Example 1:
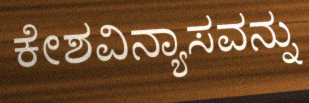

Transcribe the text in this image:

ಕೇಶವಿನ್ಯಾಸವನ್ನು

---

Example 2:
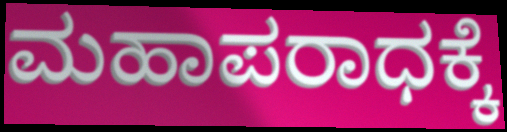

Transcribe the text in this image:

ಮಹಾಪರಾಧಕ್ಕೆ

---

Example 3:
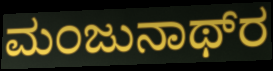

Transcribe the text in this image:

ಮಂಜುನಾಥ್‌ರ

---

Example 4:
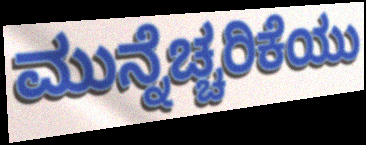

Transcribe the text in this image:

ಮುನ್ನೆಚ್ಚರಿಕೆಯು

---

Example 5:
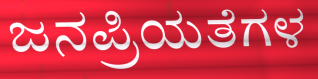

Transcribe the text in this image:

ಜನಪ್ರಿಯತೆಗಳ